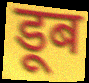
डूब